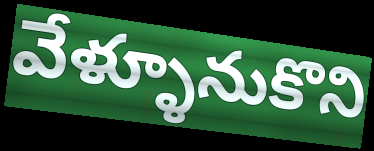
వేళ్ళూనుకొని